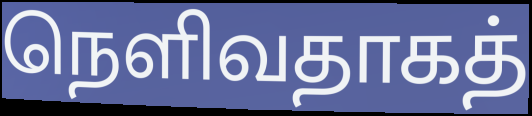
நெளிவதாகத்